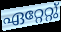
ഏറ്റേറ്റു്